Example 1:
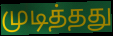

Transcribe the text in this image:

முடித்தது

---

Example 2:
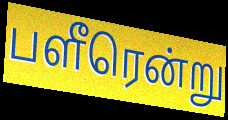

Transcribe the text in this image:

பளீரென்று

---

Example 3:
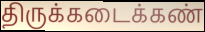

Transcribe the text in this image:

திருக்கடைக்கண்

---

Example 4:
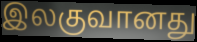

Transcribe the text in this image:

இலகுவானது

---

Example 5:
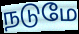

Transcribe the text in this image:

நடுமே